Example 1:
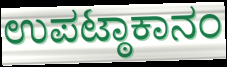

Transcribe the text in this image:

ಉಪಟ್ಠಾಕಾನಂ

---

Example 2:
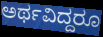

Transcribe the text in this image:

ಅರ್ಥವಿದ್ದರೂ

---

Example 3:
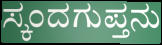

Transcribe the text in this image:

ಸ್ಕಂದಗುಪ್ತನು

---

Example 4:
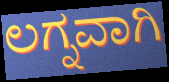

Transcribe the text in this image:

ಲಗ್ನವಾಗಿ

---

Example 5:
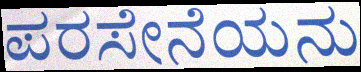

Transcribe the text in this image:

ಪರಸೇನೆಯನು